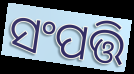
ସଂପତ୍ତି